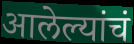
आलेल्यांचं